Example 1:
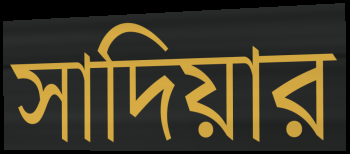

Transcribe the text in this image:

সাদিয়ার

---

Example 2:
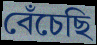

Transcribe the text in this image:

বেঁচেছি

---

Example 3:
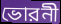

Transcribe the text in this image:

ভোরনী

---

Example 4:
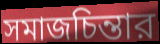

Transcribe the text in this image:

সমাজচিন্তার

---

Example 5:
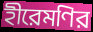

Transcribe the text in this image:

হীরেমণির